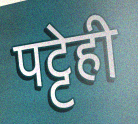
पट्टेही